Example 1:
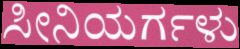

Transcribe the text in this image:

ಸೀನಿಯರ್ಗಳು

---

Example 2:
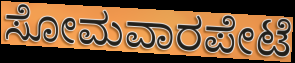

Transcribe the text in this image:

ಸೋಮವಾರಪೇಟೆ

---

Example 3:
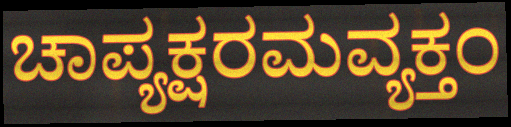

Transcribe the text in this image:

ಚಾಪ್ಯಕ್ಷರಮವ್ಯಕ್ತಂ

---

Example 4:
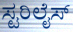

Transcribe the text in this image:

ಸ್ಟರಿಲೈಸ್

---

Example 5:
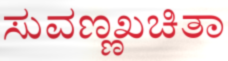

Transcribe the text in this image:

ಸುವಣ್ಣಖಚಿತಾ